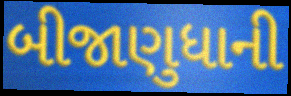
બીજાણુધાની